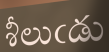
శీలుఁడు